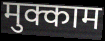
मुक्काम